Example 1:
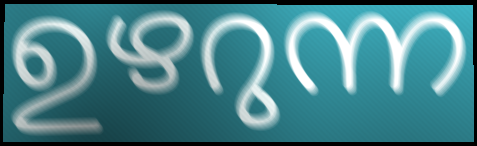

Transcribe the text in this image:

ഉഴറുന്ന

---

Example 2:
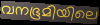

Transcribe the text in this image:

വനഭൂമിയിലെ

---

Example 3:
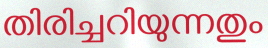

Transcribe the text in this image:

തിരിച്ചറിയുന്നതും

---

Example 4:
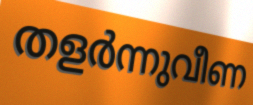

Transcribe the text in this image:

തളർന്നുവീണ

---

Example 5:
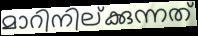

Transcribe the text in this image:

മാറിനില്ക്കുന്നത്